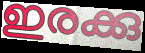
ഇരക്കു